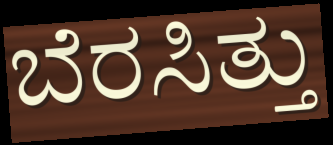
ಬೆರಸಿತ್ತು